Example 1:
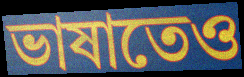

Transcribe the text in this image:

ভাষাতেও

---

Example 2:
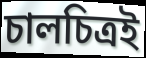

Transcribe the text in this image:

চালচিত্রই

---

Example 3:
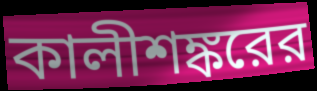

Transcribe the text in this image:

কালীশঙ্করের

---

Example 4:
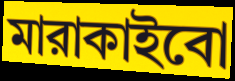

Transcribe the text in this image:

মারাকাইবো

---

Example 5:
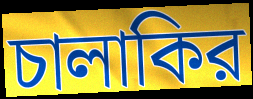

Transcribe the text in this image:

চালাকির